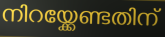
നിറയ്ക്കേണ്ടതിന്